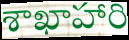
శాఖాహారి